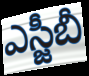
ఎస్జీబీ